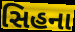
સિહના